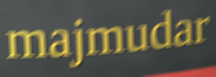
majmudar